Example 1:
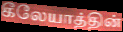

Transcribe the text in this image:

கீலேயாத்தின்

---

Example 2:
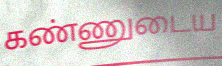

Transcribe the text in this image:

கண்ணுடைய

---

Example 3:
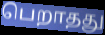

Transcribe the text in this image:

பெறாதது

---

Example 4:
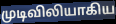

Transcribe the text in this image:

முடிவிலியாகிய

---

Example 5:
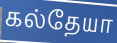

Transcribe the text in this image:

கல்தேயா